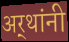
अर्थांनी